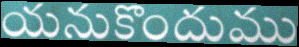
యనుకొందుము